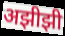
अझीझी